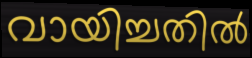
വായിച്ചതിൽ